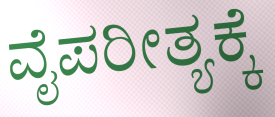
ವೈಪರೀತ್ಯಕ್ಕೆ